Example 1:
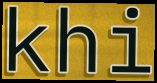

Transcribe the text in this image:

khi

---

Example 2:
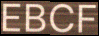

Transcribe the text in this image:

EBCF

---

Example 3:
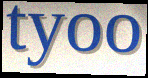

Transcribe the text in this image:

tyoo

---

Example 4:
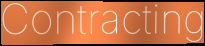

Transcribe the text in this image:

Contracting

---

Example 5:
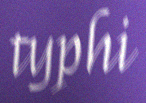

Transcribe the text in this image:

typhi